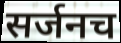
सर्जनच